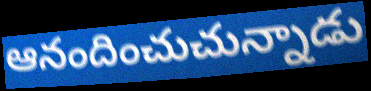
ఆనందించుచున్నాడు